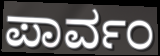
ಪಾರ್ವಂ